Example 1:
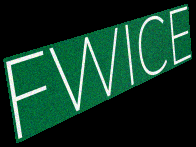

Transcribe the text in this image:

FWICE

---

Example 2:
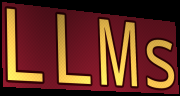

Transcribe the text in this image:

LLMs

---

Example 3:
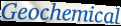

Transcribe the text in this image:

Geochemical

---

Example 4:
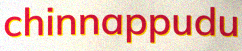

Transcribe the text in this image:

chinnappudu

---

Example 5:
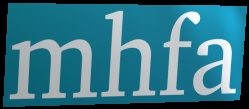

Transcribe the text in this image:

mhfa